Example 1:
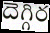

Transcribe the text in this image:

దెగ్గిర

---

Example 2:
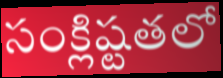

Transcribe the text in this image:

సంక్లిష్టతలో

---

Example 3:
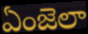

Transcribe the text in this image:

ఏంజెలా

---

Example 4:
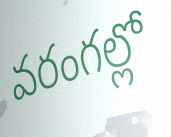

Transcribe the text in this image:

వరంగల్లో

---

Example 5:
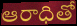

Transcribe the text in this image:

ఆరాధితో